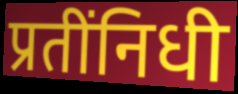
प्रतींनिधी